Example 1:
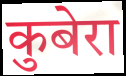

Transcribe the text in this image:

कुबेरा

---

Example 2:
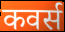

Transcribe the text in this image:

कवर्स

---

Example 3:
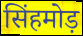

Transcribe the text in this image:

सिंहमोड़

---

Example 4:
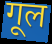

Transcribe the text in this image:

गूल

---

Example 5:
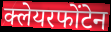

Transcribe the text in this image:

क्लेयरफोंटेन